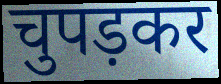
चुपड़कर